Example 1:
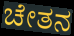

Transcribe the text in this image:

ಚೇತನ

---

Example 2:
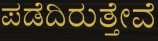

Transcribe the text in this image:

ಪಡೆದಿರುತ್ತೇವೆ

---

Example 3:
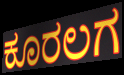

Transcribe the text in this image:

ಕೂರಲಗ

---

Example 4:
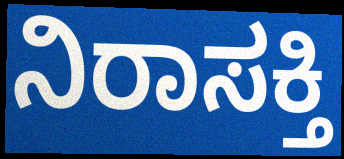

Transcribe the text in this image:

ನಿರಾಸಕ್ತಿ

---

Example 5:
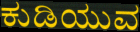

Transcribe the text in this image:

ಕುಡಿಯುವ